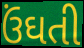
ઉંઘતી